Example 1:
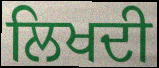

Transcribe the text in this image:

ਲਿਖਦੀ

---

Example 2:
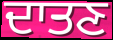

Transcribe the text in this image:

ਦਾਤਣ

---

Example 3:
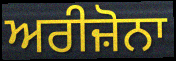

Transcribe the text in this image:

ਅਰੀਜ਼ੋਨਾ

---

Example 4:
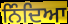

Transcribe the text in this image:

ਨਿੰਦਿਆ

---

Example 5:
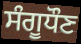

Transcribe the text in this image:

ਸੰਗੂਧੌਣ